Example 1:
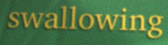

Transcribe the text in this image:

swallowing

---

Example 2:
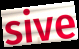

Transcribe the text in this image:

sive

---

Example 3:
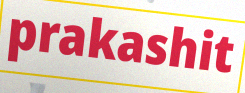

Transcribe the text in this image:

prakashit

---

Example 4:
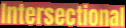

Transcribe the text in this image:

Intersectional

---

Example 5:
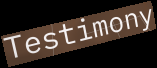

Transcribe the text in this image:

Testimony